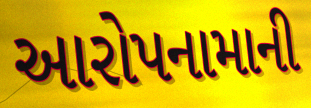
આરોપનામાની